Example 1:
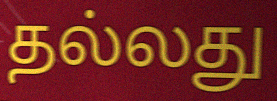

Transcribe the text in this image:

தல்லது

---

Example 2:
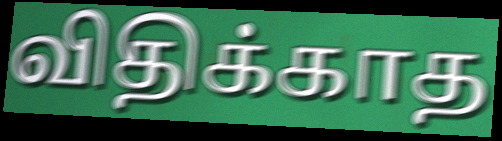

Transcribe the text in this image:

விதிக்காத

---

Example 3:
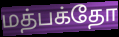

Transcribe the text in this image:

மத்பக்தோ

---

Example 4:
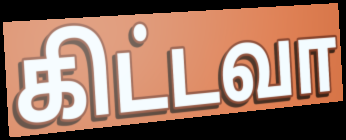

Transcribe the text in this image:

கிட்டவா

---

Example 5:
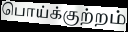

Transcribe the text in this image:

பொய்க்குற்றம்